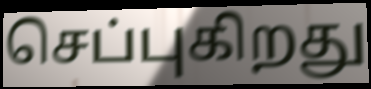
செப்புகிறது